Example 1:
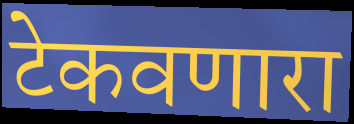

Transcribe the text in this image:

टेकवणारा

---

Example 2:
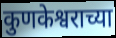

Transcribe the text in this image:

कुणकेश्वराच्या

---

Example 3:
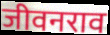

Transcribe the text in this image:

जीवनराव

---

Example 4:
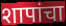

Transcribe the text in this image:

शापांचा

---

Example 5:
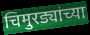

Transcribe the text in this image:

चिमुरड्यांच्या